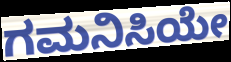
ಗಮನಿಸಿಯೇ